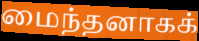
மைந்தனாகக்